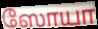
ஸோயா